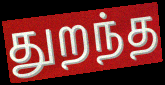
துறந்த